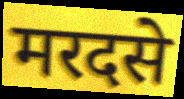
मरदसे